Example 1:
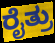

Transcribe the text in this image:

ರೈತ್ರು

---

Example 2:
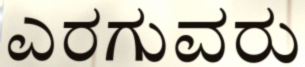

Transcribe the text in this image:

ಎರಗುವರು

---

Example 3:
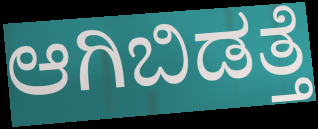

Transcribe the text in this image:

ಆಗಿಬಿಡತ್ತೆ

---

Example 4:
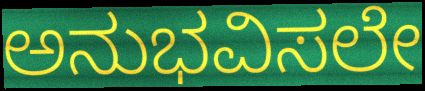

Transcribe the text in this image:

ಅನುಭವಿಸಲೇ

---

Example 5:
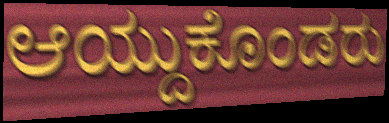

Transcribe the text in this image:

ಆಯ್ದುಕೊಂಡರು